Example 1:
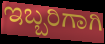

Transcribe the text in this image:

ಇಬ್ಬರಿಗಾಗಿ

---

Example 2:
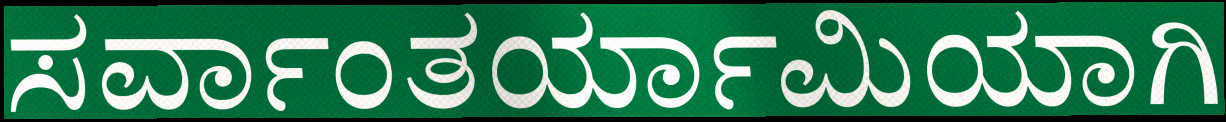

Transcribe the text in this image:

ಸರ್ವಾಂತರ್ಯಾಮಿಯಾಗಿ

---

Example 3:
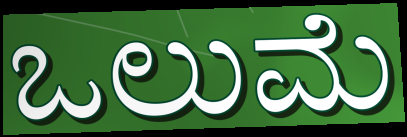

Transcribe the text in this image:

ಒಲುಮೆ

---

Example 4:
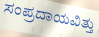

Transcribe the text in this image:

ಸಂಪ್ರದಾಯವಿತ್ತು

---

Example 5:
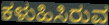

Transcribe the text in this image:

ಕಳುಹಿಸಿರುವ